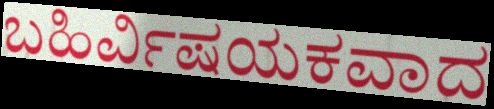
ಬಹಿರ್ವಿಷಯಕವಾದ